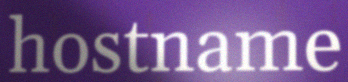
hostname